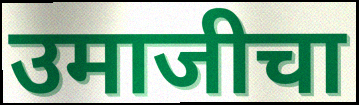
उमाजीचा